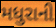
મધુરાની